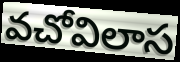
వచోవిలాస